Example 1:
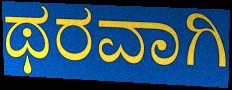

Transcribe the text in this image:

ಥರವಾಗಿ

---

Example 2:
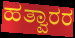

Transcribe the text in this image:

ಹತ್ವಾರರ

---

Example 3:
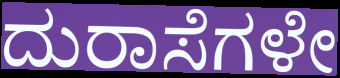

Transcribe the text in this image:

ದುರಾಸೆಗಳೇ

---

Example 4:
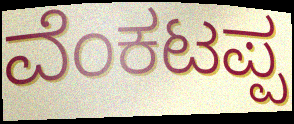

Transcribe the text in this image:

ವೆಂಕಟಪ್ಪ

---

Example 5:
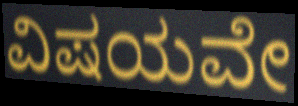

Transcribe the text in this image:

ವಿಷಯವೇ